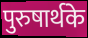
पुरुषार्थके